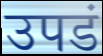
उपडं